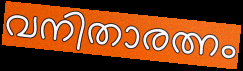
വനിതാരത്നം